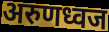
अरुणध्वज